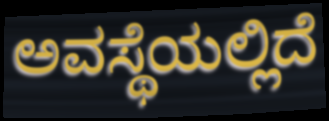
ಅವಸ್ಥೆಯಲ್ಲಿದೆ